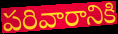
పరివారానికి